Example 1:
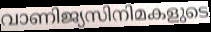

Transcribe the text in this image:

വാണിജ്യസിനിമകളുടെ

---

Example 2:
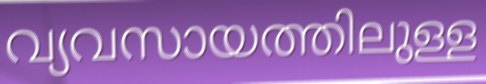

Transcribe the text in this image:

വ്യവസായത്തിലുള്ള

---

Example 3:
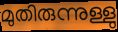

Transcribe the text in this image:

മുതിരുന്നുള്ളു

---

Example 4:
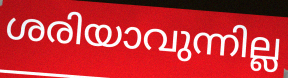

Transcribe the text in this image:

ശരിയാവുന്നില്ല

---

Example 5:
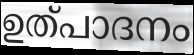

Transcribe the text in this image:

ഉത്പാദനം